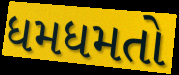
ધમધમતો